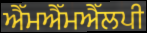
ਐੱਮਐੱਮਐੱਲਪੀ